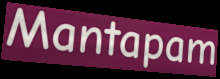
Mantapam